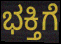
ಭಕ್ತಿಗೆ